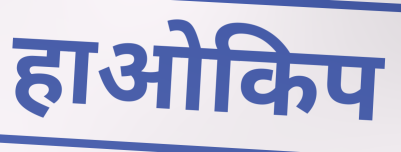
हाओकिप